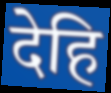
देहि